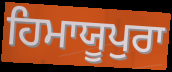
ਹਿਮਾਯੂਪੁਰਾ